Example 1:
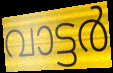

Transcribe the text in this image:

വാട്ടർ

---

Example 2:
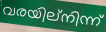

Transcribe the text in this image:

വരയില്നിന്ന്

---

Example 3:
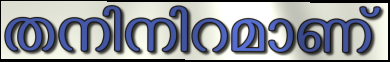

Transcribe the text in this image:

തനിനിറമാണ്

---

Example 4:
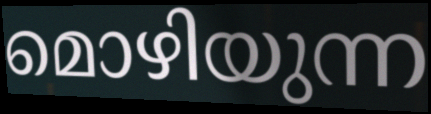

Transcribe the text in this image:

മൊഴിയുന്ന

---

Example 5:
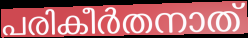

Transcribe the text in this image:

പരികീർതനാത്